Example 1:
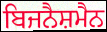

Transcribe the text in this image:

ਬਿਜਨੈਸ਼ਮੈਨ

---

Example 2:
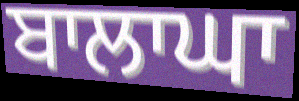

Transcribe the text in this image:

ਬਾਲਾਘਾ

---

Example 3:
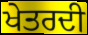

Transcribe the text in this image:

ਖੇਤਰਦੀ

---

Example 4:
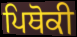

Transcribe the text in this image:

ਪਿਥੋਕੀ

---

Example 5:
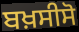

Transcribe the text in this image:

ਬਖ਼ਸੀਸੋ